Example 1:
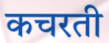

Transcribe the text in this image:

कचरती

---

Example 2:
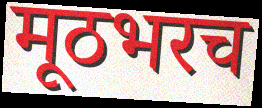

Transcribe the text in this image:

मूठभरच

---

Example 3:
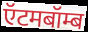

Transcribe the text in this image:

ऍटमबॉम्ब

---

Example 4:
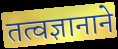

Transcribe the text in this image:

तत्वज्ञानाने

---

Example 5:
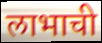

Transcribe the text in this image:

लाभाची